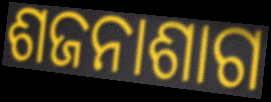
ଶଜନାଶାଗ